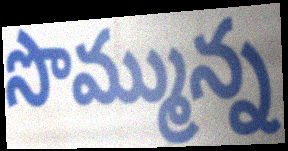
సొమ్మున్న